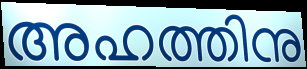
അഹത്തിനു